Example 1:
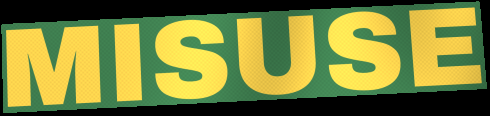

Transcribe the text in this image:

MISUSE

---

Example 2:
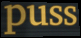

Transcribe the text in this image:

puss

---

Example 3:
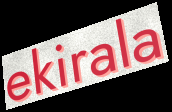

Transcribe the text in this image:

ekirala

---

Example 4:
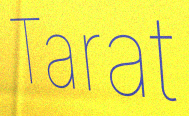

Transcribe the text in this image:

Tarat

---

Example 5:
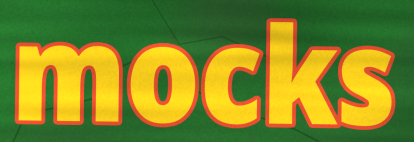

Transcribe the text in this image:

mocks